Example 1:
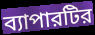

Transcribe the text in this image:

ব্যাপারটির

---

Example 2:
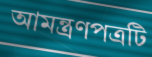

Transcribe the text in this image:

আমন্ত্রণপত্রটি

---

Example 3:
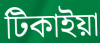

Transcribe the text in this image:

টিকাইয়া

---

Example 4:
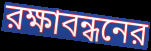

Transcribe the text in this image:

রক্ষাবন্ধনের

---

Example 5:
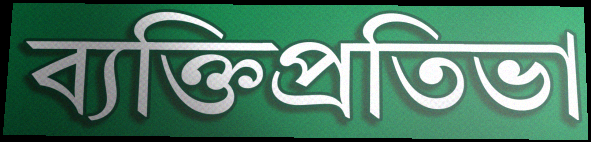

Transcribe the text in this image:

ব্যক্তিপ্রতিভা